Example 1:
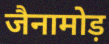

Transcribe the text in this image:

जैनामोड़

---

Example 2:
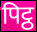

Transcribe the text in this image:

पिट्ठ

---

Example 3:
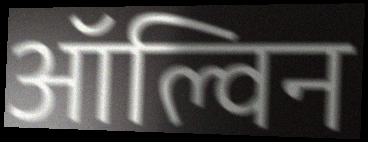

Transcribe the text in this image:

ऑल्विन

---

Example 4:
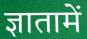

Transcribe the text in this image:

ज्ञातामें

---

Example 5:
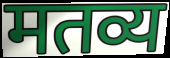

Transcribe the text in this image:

मतव्य